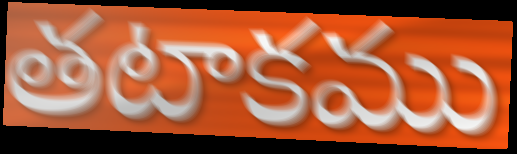
తటాకము